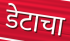
डेटाचा